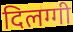
दिलग्गी